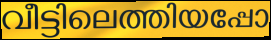
വീട്ടിലെത്തിയപ്പോ